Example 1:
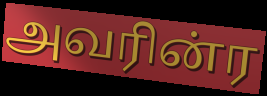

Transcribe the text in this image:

அவரின்ர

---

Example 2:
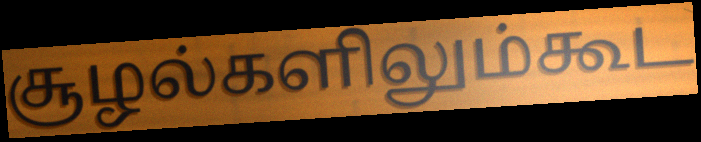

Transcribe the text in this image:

சூழல்களிலும்கூட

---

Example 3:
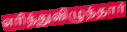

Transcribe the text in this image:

எரிந்துவிழுந்தார்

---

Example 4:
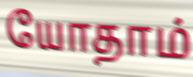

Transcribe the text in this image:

யோதாம்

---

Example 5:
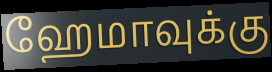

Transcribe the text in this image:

ஹேமாவுக்கு